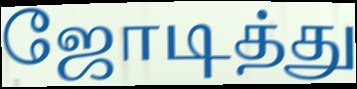
ஜோடித்து